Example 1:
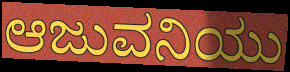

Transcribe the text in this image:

ಆಜುವನಿಯು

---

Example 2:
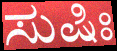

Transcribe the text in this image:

ಸುಷಿಃ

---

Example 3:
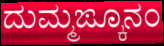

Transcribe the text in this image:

ದುಮ್ಮಙ್ಕೂನಂ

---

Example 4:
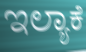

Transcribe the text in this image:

ಇಲ್ಯಾಕೆ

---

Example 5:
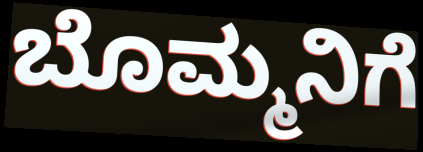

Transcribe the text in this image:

ಬೊಮ್ಮನಿಗೆ